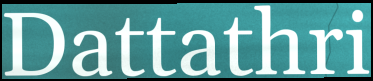
Dattathri